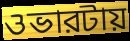
ওভারটায়